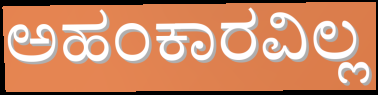
ಅಹಂಕಾರವಿಲ್ಲ